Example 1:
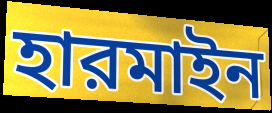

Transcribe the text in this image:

হারমাইন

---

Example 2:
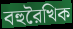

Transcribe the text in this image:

বহুরৈখিক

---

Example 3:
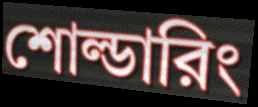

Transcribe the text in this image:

শোল্ডারিং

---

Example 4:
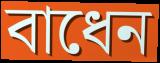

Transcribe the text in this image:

বাধেন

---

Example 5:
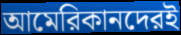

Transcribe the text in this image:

আমেরিকানদেরই